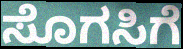
ಸೊಗಸಿಗೆ